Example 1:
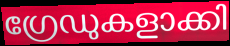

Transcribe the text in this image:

ഗ്രേഡുകളാക്കി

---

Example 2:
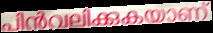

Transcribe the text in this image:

പിൻവലിക്കുകയാണ്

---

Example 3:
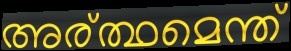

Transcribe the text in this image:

അര്ത്ഥമെന്ത്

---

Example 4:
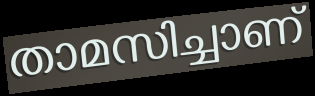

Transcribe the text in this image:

താമസിച്ചാണ്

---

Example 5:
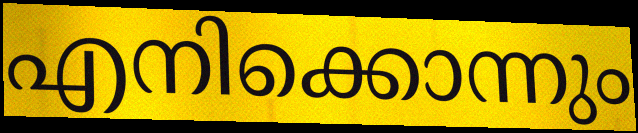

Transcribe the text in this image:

എനിക്കൊന്നും